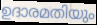
ഉദാരമതിയും